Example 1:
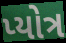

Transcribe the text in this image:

પ્યોત્ર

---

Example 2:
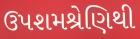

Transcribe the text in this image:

ઉપશમશ્રેણિથી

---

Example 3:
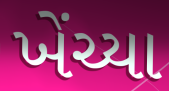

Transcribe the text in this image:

ખેંચ્યા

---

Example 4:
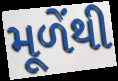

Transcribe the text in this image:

મૂળેંથી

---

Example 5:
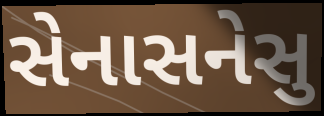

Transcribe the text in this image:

સેનાસનેસુ